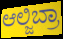
ಆಲ್ಜಿಬ್ರಾ